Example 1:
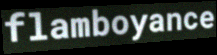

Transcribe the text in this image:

flamboyance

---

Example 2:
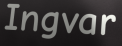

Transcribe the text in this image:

Ingvar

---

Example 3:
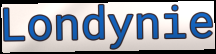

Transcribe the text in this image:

Londynie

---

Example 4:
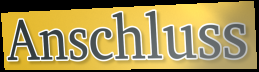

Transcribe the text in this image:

Anschluss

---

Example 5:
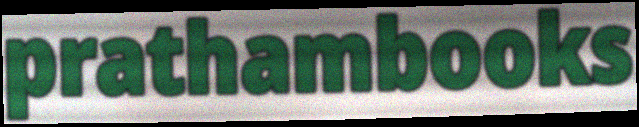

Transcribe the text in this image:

prathambooks